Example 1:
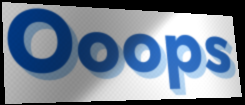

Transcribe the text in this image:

Ooops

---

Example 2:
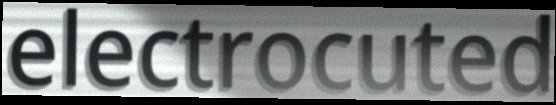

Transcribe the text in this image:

electrocuted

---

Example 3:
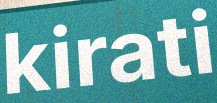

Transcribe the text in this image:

kirati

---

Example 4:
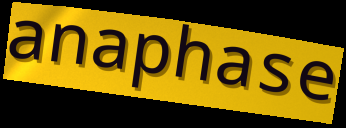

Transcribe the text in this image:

anaphase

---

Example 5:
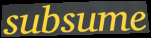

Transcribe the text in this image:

subsume